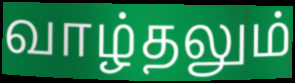
வாழ்தலும்